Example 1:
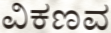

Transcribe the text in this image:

ವಿಕಣವ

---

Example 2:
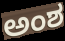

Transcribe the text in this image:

ಅಂಶ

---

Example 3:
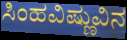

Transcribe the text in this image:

ಸಿಂಹವಿಷ್ಣುವಿನ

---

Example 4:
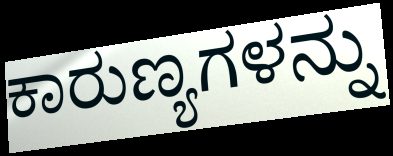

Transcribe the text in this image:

ಕಾರುಣ್ಯಗಳನ್ನು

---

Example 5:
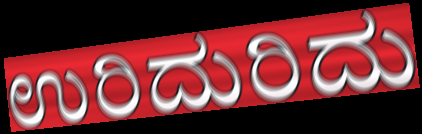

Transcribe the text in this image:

ಉರಿದುರಿದು